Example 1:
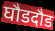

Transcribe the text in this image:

घौडदौड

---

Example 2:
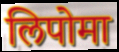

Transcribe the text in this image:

लिपोमा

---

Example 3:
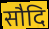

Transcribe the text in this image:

सौदि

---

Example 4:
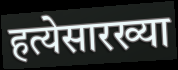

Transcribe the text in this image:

हत्येसारख्या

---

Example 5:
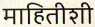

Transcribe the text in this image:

माहितीशी